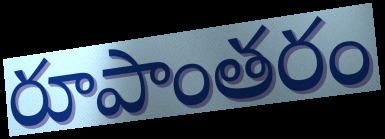
రూపాంతరం